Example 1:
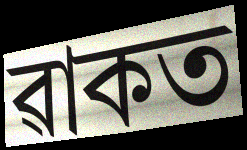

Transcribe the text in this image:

ৱাকত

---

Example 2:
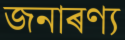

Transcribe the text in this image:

জনাৰণ্য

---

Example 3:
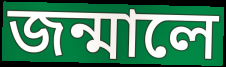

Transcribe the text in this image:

জন্মালে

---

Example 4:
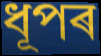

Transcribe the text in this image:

ধূপৰ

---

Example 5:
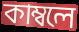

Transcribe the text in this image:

কাম্বলে